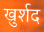
खुर्शद